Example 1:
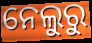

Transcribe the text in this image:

ନେଲୁରୁ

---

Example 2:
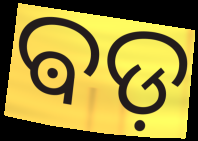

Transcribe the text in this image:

ଵଡ଼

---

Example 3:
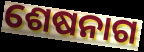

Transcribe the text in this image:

ଶେଷନାଗ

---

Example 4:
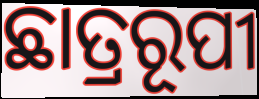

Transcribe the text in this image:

ଛାତ୍ରରୂପୀ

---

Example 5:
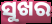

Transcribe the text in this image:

ସୁଖର